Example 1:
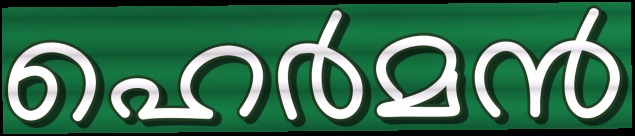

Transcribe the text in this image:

ഹെർമൻ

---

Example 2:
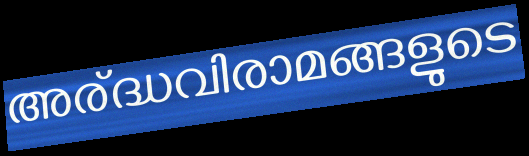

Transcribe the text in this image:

അര്ദ്ധവിരാമങ്ങളുടെ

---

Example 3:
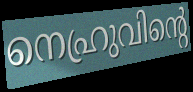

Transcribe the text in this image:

നെഹ്രുവിന്റെ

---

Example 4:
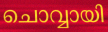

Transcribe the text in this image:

ചൊവ്വായി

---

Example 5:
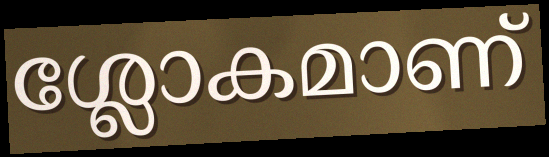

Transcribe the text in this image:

ശ്ലോകമാണ്